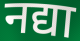
नद्या